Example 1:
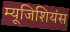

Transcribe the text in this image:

म्यूजिशियंस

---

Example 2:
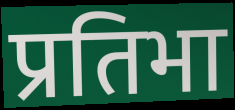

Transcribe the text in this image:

प्रतिभा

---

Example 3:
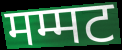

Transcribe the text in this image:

मम्मट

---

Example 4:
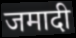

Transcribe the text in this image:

जमादी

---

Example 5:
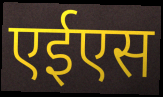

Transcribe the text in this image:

एईएस